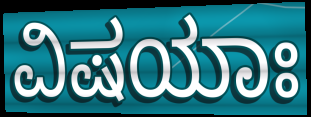
ವಿಷಯಾಃ